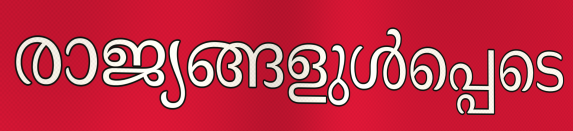
രാജ്യങ്ങളുൾപ്പെടെ